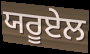
ਯਰੂਏਲ